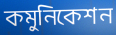
কমুনিকেশন